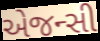
એજન્સી